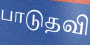
பாடுதவி